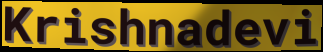
Krishnadevi